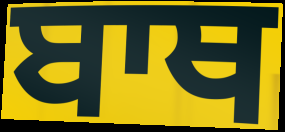
ਬਾਥ